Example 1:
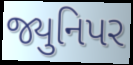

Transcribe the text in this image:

જ્યુનિપર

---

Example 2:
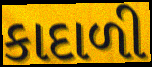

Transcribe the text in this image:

કાદાળી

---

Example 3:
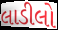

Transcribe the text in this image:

લાડીલો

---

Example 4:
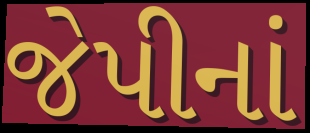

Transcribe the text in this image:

જેપીનાં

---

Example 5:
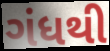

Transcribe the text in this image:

ગંધથી